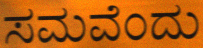
ಸಮವೆಂದು